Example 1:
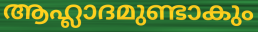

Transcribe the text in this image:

ആഹ്ലാദമുണ്ടാകും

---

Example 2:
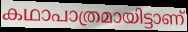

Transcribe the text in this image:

കഥാപാത്രമായിട്ടാണ്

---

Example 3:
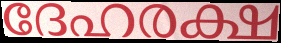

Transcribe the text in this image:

ദേഹരക്ഷ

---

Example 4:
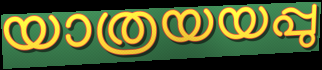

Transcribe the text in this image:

യാത്രയയപ്പു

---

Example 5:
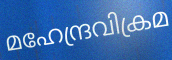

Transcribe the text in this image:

മഹേന്ദ്രവിക്രമ